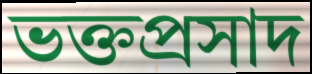
ভক্তপ্রসাদ